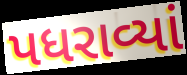
પધરાવ્યાં